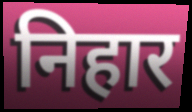
निहार